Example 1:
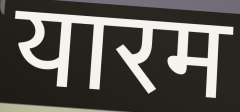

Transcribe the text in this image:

यारम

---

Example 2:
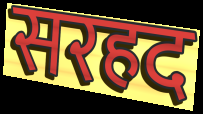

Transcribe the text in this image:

सरहद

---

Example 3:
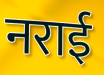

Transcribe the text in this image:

नराई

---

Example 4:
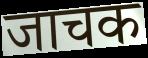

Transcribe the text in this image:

जाचक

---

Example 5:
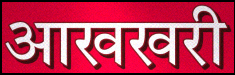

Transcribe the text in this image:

आखखरी